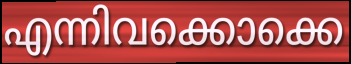
എന്നിവക്കൊക്കെ